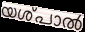
യശ്പാൽ